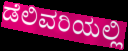
ಡೆಲಿವರಿಯಲ್ಲಿ